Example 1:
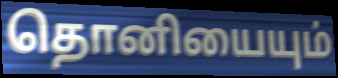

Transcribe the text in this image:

தொனியையும்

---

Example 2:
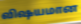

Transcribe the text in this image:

விஷயமான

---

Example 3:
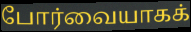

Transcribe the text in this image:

போர்வையாகக்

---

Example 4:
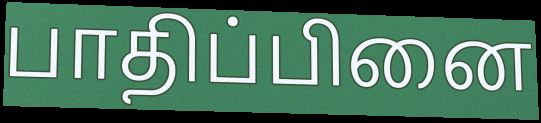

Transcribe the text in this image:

பாதிப்பினை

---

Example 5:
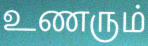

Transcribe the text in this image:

உணரும்